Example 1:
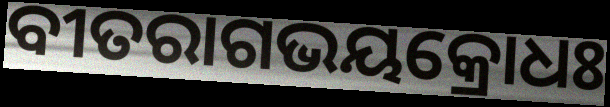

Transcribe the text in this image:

ବୀତରାଗଭୟକ୍ରୋଧଃ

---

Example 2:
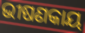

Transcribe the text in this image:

ଭୀଷଣକାୟ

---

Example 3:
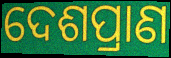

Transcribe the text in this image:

ଦେଶପ୍ରାଣ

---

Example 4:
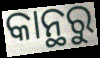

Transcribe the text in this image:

କାନ୍ଥରୁ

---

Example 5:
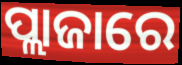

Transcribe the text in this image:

ପ୍ଲାଜାରେ